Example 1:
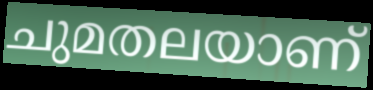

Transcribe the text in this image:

ചുമതലയാണ്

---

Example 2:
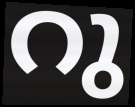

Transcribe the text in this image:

റു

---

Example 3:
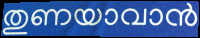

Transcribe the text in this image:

തുണയാവാൻ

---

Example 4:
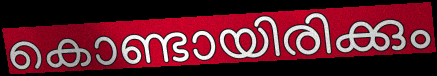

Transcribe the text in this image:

കൊണ്ടായിരിക്കും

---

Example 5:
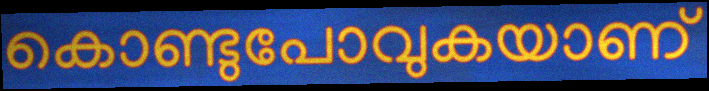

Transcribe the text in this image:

കൊണ്ടുപോവുകയാണ്